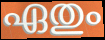
ഏതും